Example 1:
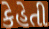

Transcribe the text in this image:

કેહેતી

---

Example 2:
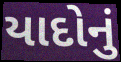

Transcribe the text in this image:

યાદોનું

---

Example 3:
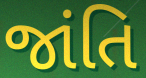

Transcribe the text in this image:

જાંતિ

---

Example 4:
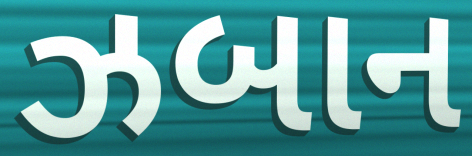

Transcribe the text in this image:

ઝબાન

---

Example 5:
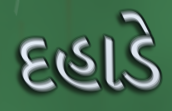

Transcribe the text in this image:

દહાડે